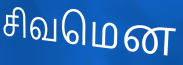
சிவமென